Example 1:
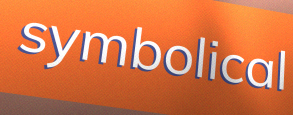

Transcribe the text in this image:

symbolical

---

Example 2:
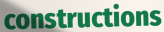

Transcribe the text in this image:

constructions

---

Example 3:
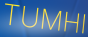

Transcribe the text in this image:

TUMHI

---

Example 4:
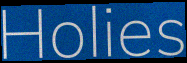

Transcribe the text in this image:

Holies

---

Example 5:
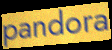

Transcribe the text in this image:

pandora